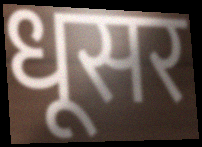
धूसर